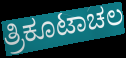
ತ್ರಿಕೂಟಾಚಲ